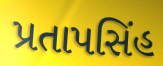
પ્રતાપસિંહ